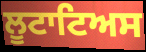
ਲੂਟਾਟਿਅਸ